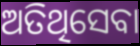
ଅତିଥିସେବା